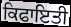
ਕਿਫਾਇਤੀ